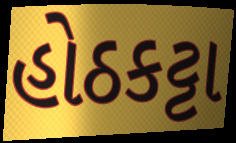
હોઠકટ્ટા